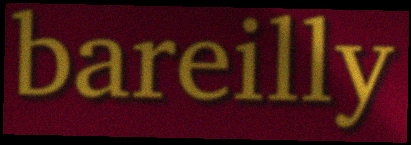
bareilly